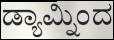
ಡ್ಯಾಮ್ನಿಂದ